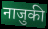
नाजुकी